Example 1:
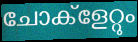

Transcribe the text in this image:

ചോക്ളേറ്റും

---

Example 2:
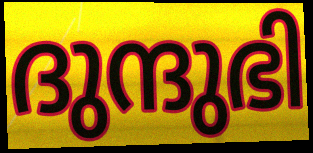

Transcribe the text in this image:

ദുന്ദുഭി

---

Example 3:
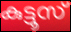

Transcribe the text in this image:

കുട്ടൂസ്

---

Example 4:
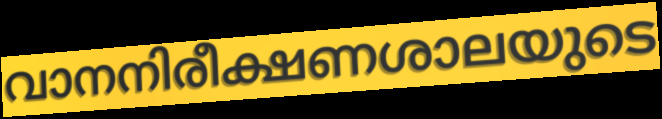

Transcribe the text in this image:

വാനനിരീക്ഷണശാലയുടെ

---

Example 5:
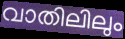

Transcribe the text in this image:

വാതിലിലും